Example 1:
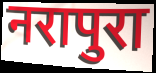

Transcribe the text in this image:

नरापुरा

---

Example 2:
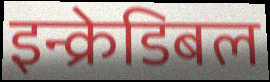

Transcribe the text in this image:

इन्क्रेडिबल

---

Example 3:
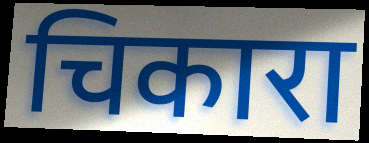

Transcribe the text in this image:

चिकारा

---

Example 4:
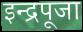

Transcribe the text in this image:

इन्द्रपूजा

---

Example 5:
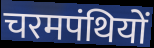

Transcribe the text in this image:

चरमपंथियों